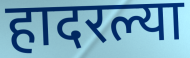
हादरल्या